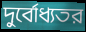
দুর্বোধ্যতর